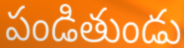
పండితుండు